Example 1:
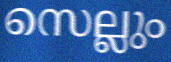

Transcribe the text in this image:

സെല്ലും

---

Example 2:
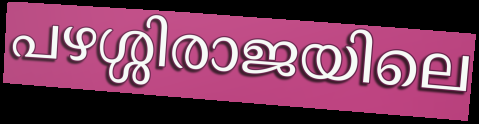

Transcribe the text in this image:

പഴശ്ശിരാജയിലെ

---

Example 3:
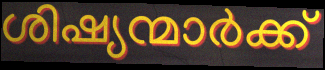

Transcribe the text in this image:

ശിഷ്യന്മാർക്ക്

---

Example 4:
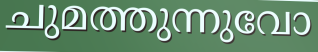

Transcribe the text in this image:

ചുമത്തുന്നുവോ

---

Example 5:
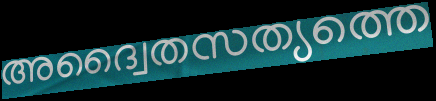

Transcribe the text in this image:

അദ്വൈതസത്യത്തെ